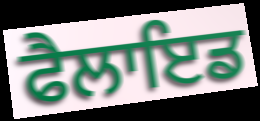
ਫੈਲਾਇਡ